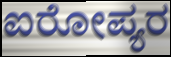
ಐರೋಪ್ಯರ